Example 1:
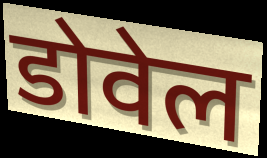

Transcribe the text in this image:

डोवेल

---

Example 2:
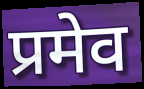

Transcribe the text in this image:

प्रमेव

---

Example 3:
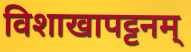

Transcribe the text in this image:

विशाखापट्टनम्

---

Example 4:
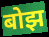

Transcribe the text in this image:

बोझ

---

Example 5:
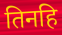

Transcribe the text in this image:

तिनहि